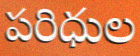
పరిధుల